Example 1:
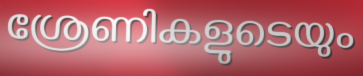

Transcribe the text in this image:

ശ്രേണികളുടെയും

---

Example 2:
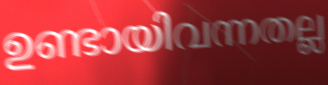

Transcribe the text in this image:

ഉണ്ടായിവന്നതല്ല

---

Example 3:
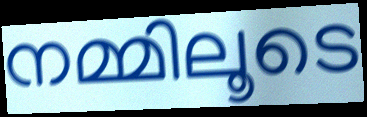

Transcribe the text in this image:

നമ്മിലൂടെ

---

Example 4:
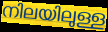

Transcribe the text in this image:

നിലയിലുള്ള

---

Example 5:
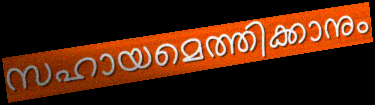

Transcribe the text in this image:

സഹായമെത്തിക്കാനും